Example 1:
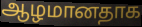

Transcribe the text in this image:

ஆழமானதாக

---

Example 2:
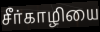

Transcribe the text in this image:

சீர்காழியை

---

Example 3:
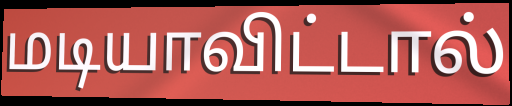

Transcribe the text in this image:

மடியாவிட்டால்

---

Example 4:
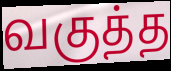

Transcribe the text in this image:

வகுத்த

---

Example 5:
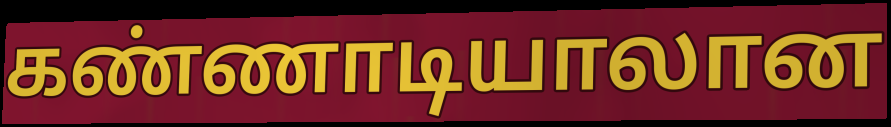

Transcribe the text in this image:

கண்ணாடியாலான